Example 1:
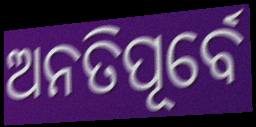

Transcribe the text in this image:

ଅନତିପୂର୍ବେ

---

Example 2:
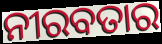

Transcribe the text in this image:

ନୀରବତାର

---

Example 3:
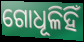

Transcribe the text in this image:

ଗୋଧୂଳିହିଁ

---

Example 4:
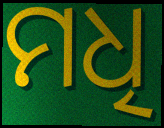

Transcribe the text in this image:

ମଧି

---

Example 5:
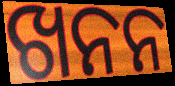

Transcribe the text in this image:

ଖନନ